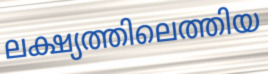
ലക്ഷ്യത്തിലെത്തിയ